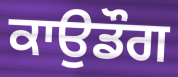
ਕਾਉਡੌਗ